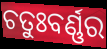
ଚତୁଃବର୍ଣ୍ଣର